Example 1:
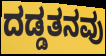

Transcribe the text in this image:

ದಡ್ಡತನವು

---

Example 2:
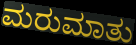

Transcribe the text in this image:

ಮರುಮಾತು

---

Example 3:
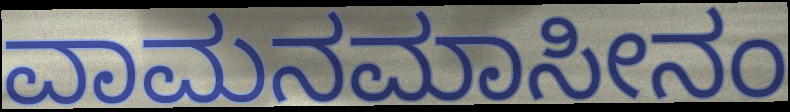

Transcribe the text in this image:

ವಾಮನಮಾಸೀನಂ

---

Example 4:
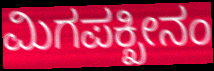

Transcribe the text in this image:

ಮಿಗಪಕ್ಖೀನಂ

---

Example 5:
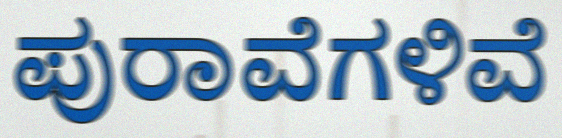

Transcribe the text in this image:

ಪುರಾವೆಗಳಿವೆ